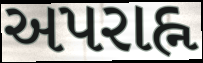
અપરાહ્ન